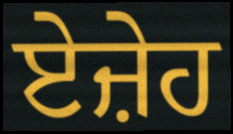
ਏਜ਼ੇਹ